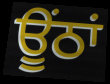
ਊਂਠਾਂ